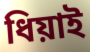
ধিয়াই